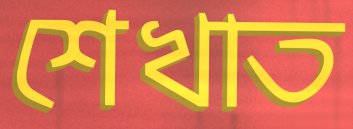
শেখাত